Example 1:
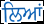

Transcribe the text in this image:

ਲਿਆਂ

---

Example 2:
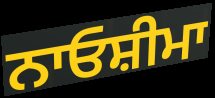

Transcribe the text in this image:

ਨਾਓਸ਼ੀਮਾ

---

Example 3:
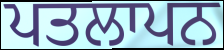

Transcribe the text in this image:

ਪਤਲਾਪਨ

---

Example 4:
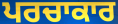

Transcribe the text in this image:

ਪਰਚਾਕਾਰ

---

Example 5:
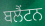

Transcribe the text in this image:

ਬਲੈਂਟਨ